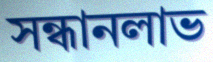
সন্ধানলাভ